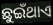
ଛୁଇଁଥାଏ